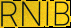
RNIB